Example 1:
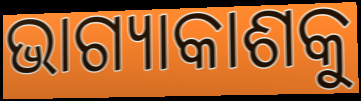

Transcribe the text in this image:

ଭାଗ୍ୟାକାଶକୁ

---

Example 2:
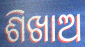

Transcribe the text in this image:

ଶିଖାଅ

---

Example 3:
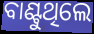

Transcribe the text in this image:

ବାଣ୍ଟୁଥିଲେ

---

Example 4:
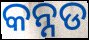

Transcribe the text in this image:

କନ୍ନଡ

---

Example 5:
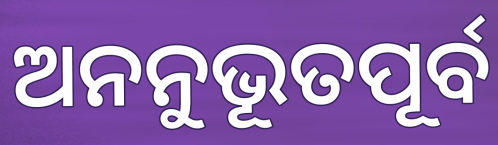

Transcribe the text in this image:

ଅନନୁଭୂତପୂର୍ବ